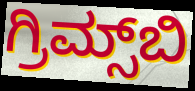
ಗ್ರಿಮ್ಸ್‌ಬಿ